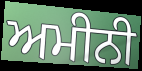
ਅਮੀਨੀ